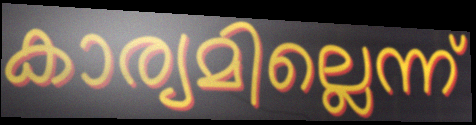
കാര്യമില്ലെന്ന്